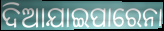
ଦିଆଯାଇପାରେନା